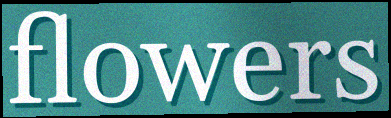
flowers